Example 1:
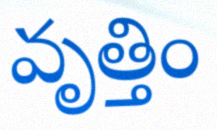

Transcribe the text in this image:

వృత్తిం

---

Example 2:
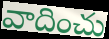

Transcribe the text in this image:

వాదించు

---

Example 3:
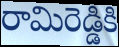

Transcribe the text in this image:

రామిరెడ్డికి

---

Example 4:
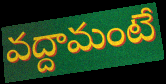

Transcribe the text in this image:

వద్దామంటే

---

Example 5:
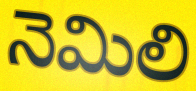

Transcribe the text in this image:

నెమిలి